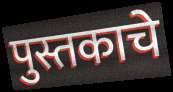
पुस्तकाचे